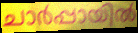
ചാർപ്പായിൽ